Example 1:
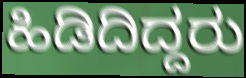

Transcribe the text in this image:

ಹಿಡಿದಿದ್ದರು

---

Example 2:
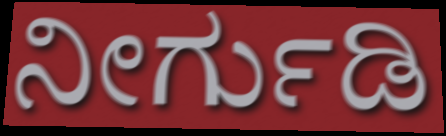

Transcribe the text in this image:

ನೀರ್ಗುಡಿ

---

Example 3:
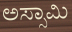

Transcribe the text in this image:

ಅಸ್ಸಾಮಿ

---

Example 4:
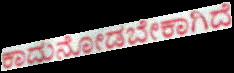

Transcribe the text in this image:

ಕಾದುನೋಡಬೇಕಾಗಿದೆ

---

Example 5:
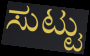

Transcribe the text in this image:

ಸುಟ್ಟು